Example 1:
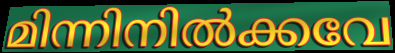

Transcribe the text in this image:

മിന്നിനിൽക്കവേ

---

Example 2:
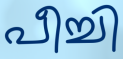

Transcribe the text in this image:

പീച്ചി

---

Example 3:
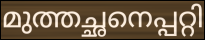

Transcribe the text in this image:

മുത്തച്ഛനെപ്പറ്റി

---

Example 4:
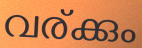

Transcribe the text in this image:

വര്ക്കും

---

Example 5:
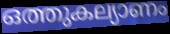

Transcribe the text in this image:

ഒത്തുകല്യാണം